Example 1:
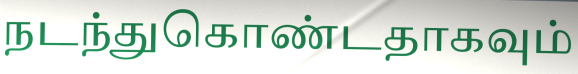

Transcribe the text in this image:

நடந்துகொண்டதாகவும்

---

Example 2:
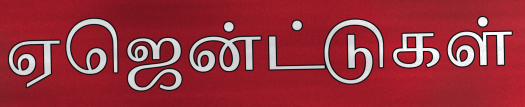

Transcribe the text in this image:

ஏஜென்ட்டுகள்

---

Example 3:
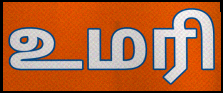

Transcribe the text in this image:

உமரி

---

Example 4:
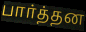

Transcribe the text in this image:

பார்த்தன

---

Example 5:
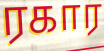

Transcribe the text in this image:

ரகார